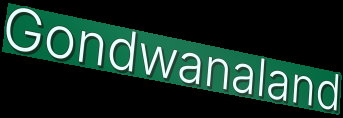
Gondwanaland